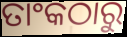
ତାଂକଠାରୁ